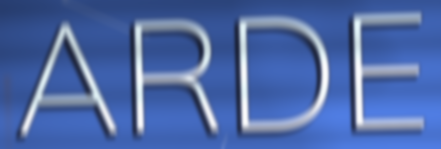
ARDE